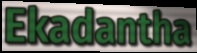
Ekadantha